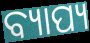
ବ୍ଯାପ୍ୟ